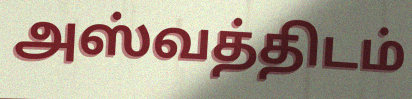
அஸ்வத்திடம்